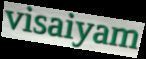
visaiyam